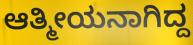
ಆತ್ಮೀಯನಾಗಿದ್ದ